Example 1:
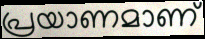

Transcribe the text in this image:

പ്രയാണമാണ്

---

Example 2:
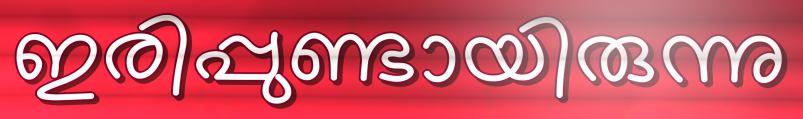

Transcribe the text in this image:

ഇരിപ്പുണ്ടായിരുന്നു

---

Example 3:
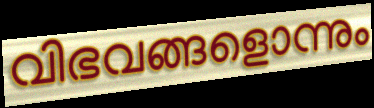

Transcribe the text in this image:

വിഭവങ്ങളൊന്നും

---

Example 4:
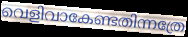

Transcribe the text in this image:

വെളിവാകേണ്ടതിന്നത്രേ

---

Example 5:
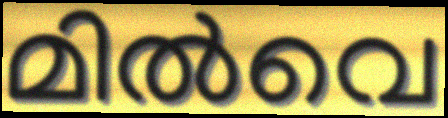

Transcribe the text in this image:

മിൽവെ